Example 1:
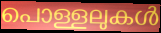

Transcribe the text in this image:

പൊള്ളലുകൾ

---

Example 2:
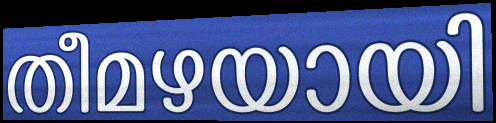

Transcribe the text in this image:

തീമഴയായി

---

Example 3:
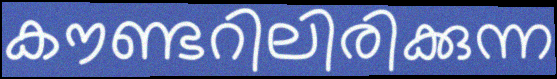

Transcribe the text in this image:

കൗണ്ടറിലിരിക്കുന്ന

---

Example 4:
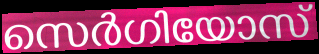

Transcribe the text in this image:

സെർഗിയോസ്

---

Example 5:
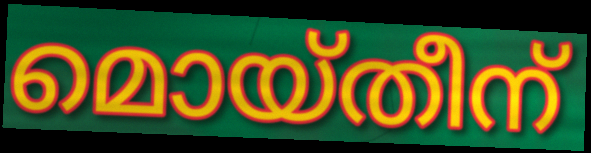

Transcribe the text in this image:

മൊയ്തീന്